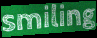
smiling